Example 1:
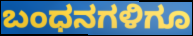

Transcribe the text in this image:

ಬಂಧನಗಳಿಗೂ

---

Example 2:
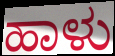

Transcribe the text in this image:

ಹಾಳು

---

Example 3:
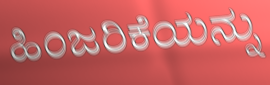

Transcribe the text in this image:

ಹಿಂಜರಿಕೆಯನ್ನು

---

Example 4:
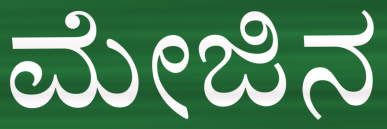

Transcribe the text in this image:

ಮೇಜಿನ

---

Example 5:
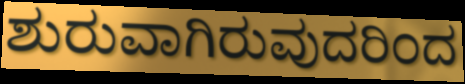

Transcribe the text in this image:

ಶುರುವಾಗಿರುವುದರಿಂದ